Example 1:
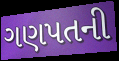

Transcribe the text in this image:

ગણપતની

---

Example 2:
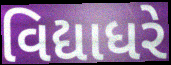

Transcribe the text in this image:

વિદ્યાધરે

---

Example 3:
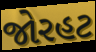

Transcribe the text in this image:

જોરહટ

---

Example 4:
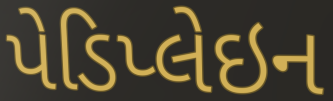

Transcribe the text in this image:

પેડિપ્લેઇન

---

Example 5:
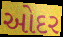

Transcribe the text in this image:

ઓદર